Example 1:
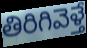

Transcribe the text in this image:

తిరిగివెళ్తే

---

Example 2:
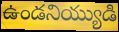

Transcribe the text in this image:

ఉండనియ్యుడి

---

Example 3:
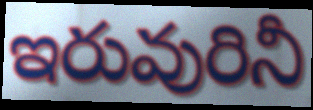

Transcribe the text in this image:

ఇరువురినీ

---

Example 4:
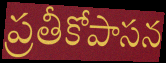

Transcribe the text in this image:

ప్రతీకోపాసన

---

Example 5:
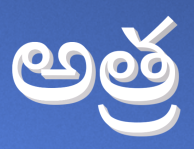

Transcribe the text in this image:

అత్ర